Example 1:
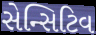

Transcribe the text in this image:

સેન્સિટિવ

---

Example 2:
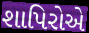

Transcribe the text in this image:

શાપિરોએ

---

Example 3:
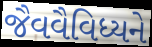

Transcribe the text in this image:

જૈવવૈવિધ્યને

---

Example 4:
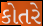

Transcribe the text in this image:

કોતરે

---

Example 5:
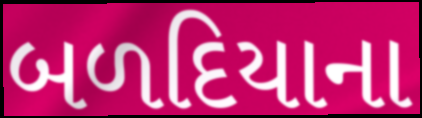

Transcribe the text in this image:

બળદિયાના